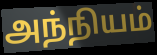
அந்நியம்